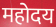
महोदय